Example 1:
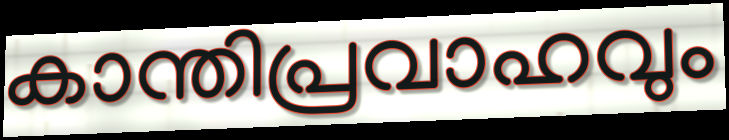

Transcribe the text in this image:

കാന്തിപ്രവാഹവും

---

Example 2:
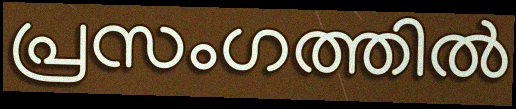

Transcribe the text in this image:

പ്രസംഗത്തിൽ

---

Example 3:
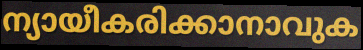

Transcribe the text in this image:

ന്യായീകരിക്കാനാവുക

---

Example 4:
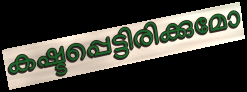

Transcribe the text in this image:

കഷ്ടപ്പെട്ടിരിക്കുമോ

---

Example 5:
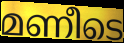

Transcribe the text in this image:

മണീടെ